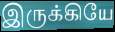
இருக்கியே